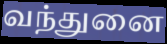
வந்துனை